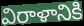
విరాళానికి